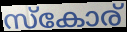
സ്കോര്